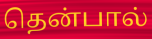
தென்பால்